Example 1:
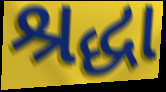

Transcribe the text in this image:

શ્રદ્ધા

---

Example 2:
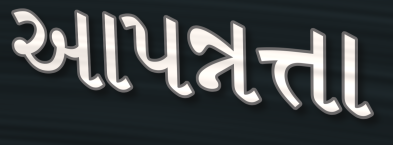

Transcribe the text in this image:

આપન્નત્તા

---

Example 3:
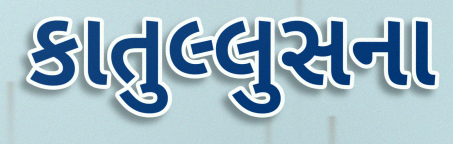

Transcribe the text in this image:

કાતુલ્લુસના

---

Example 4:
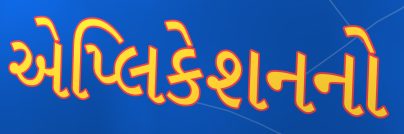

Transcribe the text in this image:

એપ્લિકેશનનો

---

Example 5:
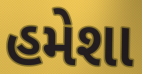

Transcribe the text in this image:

હમેશા